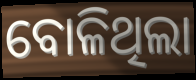
ବୋଳିଥିଲା